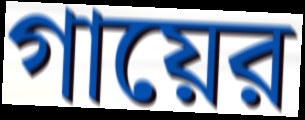
গায়ের